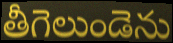
తీగెలుండెను